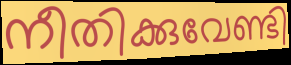
നീതിക്കുവേണ്ടി